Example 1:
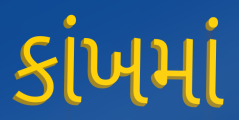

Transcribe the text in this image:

કાંખમાં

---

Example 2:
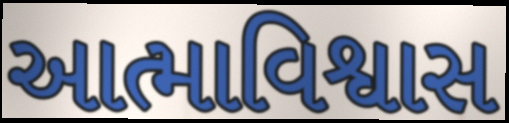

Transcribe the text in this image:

આત્માવિશ્વાસ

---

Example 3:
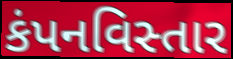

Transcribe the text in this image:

કંપનવિસ્તાર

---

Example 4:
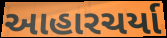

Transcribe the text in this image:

આહારચર્યા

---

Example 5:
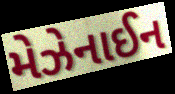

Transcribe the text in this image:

મેઝેનાઈન